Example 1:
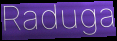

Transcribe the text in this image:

Raduga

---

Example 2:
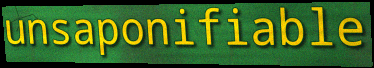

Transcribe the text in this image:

unsaponifiable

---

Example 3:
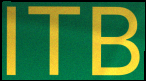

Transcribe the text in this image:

ITB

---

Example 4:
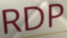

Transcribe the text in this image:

RDP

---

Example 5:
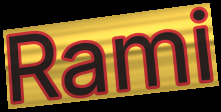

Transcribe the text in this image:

Rami